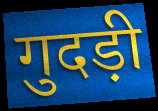
गुदड़ी